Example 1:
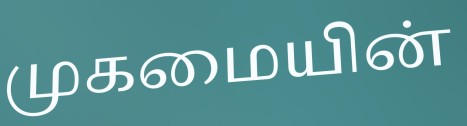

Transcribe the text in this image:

முகமையின்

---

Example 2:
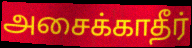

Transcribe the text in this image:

அசைக்காதீர்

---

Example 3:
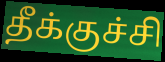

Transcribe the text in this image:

தீக்குச்சி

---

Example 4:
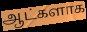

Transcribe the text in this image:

ஆட்களாக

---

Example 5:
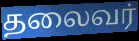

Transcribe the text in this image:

தலைவர்